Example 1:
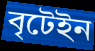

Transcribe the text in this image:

বৃটেইন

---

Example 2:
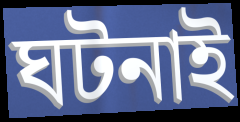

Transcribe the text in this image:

ঘটনাই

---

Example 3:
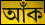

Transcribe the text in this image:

আঁক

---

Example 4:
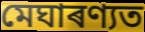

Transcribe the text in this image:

মেঘাৰণ্যত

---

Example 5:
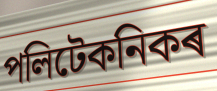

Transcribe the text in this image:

পলিটেকনিকৰ